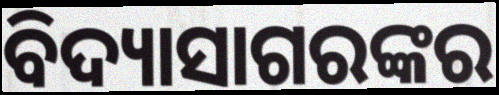
ବିଦ୍ୟାସାଗରଙ୍କର